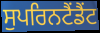
ਸੁਪਰਿਨਟੈਂਡੈਂਟ